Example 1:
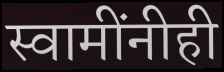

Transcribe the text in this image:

स्वामींनीही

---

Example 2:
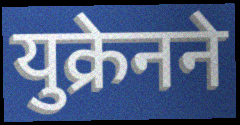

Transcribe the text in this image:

युक्रेनने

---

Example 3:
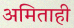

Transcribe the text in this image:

अमिताही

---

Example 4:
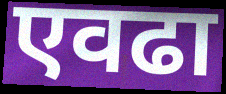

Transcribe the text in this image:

एवढा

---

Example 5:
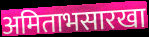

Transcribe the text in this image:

अमिताभसारखा